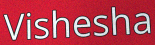
Vishesha